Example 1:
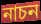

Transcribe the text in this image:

নাচন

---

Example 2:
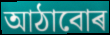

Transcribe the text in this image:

আঠাবোৰ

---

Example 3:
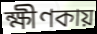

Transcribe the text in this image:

ক্ষীণকায়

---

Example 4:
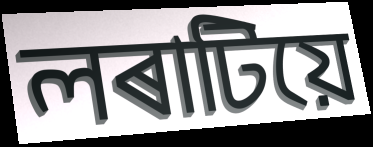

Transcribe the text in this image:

লৰাটিয়ে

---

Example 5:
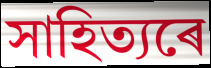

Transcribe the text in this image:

সাহিত্যৰে